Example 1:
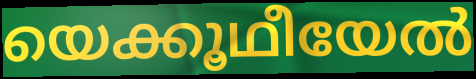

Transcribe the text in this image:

യെക്കൂഥീയേൽ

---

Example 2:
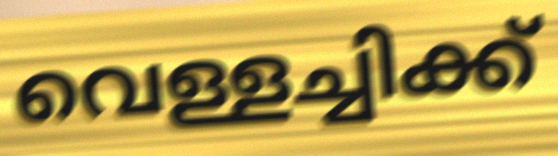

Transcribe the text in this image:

വെള്ളച്ചിക്ക്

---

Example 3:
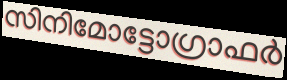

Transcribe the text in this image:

സിനിമോട്ടോഗ്രാഫർ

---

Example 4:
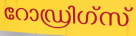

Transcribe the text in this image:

റോഡ്രിഗ്സ്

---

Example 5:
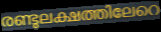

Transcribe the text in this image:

രണ്ടുലക്ഷത്തിലേറെ